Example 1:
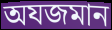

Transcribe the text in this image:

অযজমান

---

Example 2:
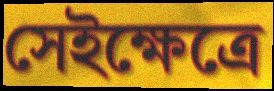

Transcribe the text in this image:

সেইক্ষেত্রে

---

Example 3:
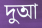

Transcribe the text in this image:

দুআ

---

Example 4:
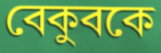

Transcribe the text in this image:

বেকুবকে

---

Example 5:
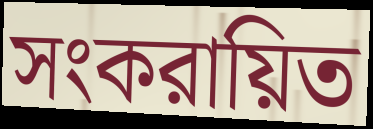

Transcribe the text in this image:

সংকরায়িত